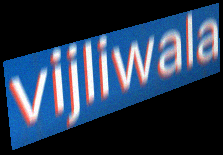
vijliwala